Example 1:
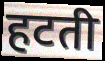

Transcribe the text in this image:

हटती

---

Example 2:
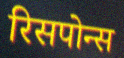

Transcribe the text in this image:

रिसपोन्स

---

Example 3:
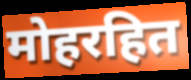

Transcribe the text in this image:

मोहरहित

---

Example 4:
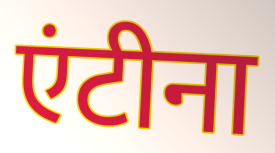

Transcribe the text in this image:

एंटीना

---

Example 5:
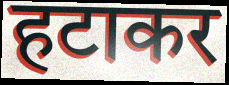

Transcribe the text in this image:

हटाकर